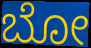
ಬೋ